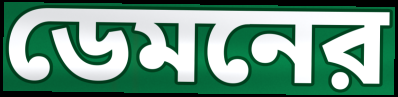
ডেমনের